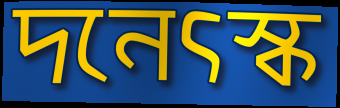
দনেৎস্ক